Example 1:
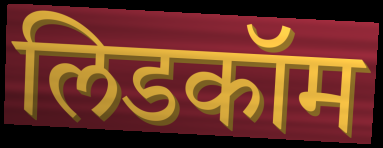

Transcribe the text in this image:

लिडकॉम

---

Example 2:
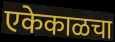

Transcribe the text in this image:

एकेकाळचा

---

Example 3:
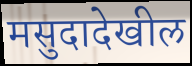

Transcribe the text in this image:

मसुदादेखील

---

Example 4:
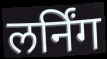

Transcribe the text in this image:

लर्निंग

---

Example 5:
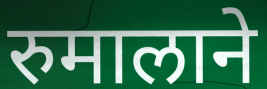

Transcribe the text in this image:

रुमालाने